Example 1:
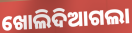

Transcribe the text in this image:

ଖୋଲିଦିଆଗଲା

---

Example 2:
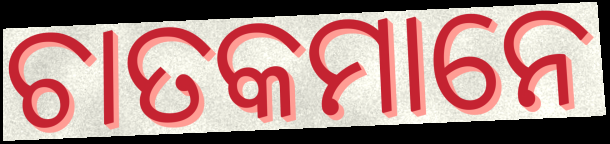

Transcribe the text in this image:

ଚାତକମାନେ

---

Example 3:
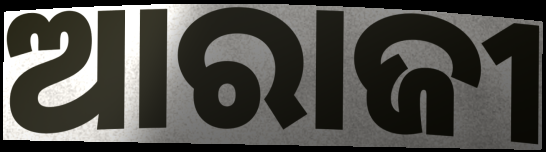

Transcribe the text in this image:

ଆରାଜୀ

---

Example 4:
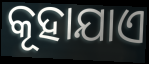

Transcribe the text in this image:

କୂହାଯାଏ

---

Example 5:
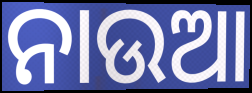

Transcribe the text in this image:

ନାଉଆ